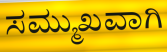
ಸಮ್ಮುಖವಾಗಿ